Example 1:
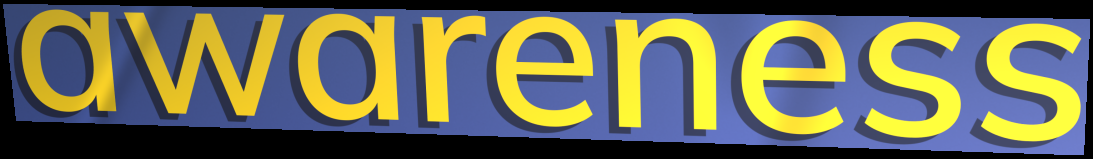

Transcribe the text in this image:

awareness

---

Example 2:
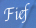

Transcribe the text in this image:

Fief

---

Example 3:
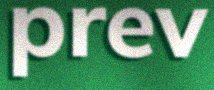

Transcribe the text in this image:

prev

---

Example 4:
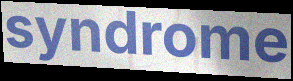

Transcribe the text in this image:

syndrome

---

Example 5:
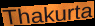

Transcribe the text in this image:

Thakurta